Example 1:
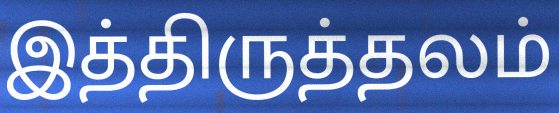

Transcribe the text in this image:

இத்திருத்தலம்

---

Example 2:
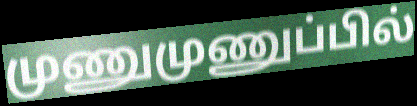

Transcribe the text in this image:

முணுமுணுப்பில்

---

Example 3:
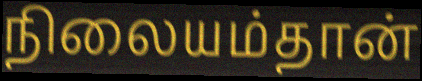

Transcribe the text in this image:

நிலையம்தான்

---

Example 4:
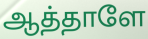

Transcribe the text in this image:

ஆத்தாளே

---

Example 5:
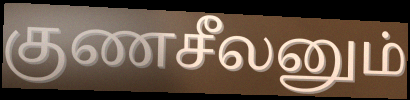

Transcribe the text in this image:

குணசீலனும்